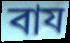
বায